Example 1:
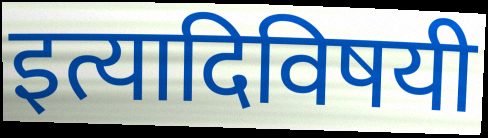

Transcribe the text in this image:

इत्यादिविषयी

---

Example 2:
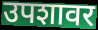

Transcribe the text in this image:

उपशावर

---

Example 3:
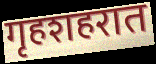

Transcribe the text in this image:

गृहशहरात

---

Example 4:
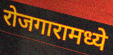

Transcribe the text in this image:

रोजगारामध्ये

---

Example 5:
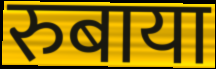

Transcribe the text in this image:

रुबाया